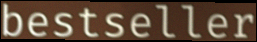
bestseller